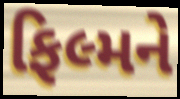
ફિલ્મને